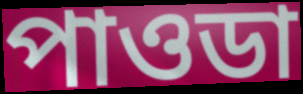
পাওডা